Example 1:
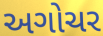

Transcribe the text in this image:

અગોચર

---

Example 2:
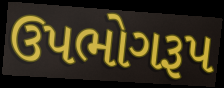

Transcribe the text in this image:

ઉપભોગરૂપ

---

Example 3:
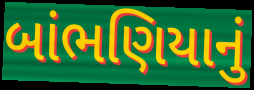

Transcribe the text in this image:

બાંભણિયાનું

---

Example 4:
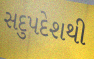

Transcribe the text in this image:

સદુપદેશથી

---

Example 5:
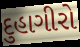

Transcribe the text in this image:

દુહાગીરો